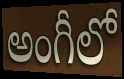
అంగీలో